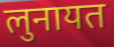
लुनायत